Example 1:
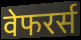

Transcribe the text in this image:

वेफरर्स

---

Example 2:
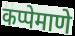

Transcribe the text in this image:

कप्पेमाणे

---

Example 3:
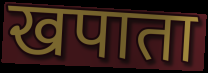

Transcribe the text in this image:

खपाता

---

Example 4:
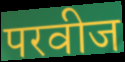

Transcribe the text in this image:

परवीज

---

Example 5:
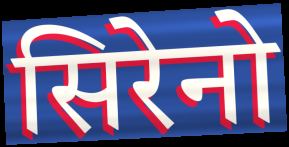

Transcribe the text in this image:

सिरेनो